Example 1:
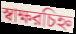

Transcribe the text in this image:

স্বাক্ষরচিহ্ন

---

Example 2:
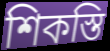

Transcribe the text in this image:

শিকস্তি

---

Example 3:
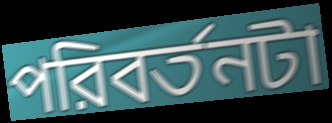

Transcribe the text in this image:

পরিবর্তনটা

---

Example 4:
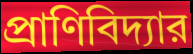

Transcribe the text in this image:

প্রাণিবিদ্যার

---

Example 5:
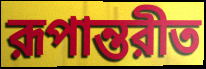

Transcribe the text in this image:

রূপান্তরীত